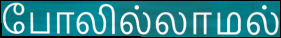
போலில்லாமல்